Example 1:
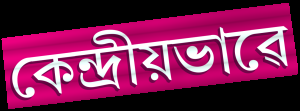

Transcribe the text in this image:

কেন্দ্ৰীয়ভাৱে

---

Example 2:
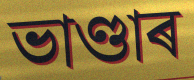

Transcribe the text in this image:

ভাণ্ডাৰ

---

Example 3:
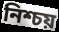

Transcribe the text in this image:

নিশ্চয়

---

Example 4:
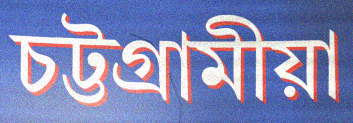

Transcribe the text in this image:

চট্টগ্ৰামীয়া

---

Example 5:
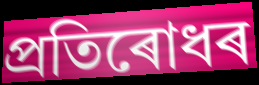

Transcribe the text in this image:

প্ৰতিৰোধৰ